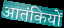
आतंकियों